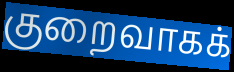
குறைவாகக்